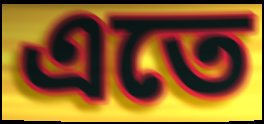
এতে